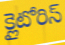
క్లైటోరిస్